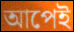
আপেই